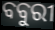
ବବୁରୀ